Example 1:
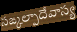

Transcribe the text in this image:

సఙ్కల్పాదేవాస్య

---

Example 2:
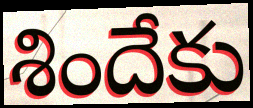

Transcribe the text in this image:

శిందేకు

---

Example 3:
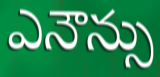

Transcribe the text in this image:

ఎనౌన్సు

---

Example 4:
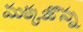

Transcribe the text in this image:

మక్కజొన్న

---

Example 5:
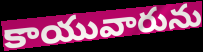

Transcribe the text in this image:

కాయువారును